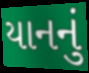
યાનનું